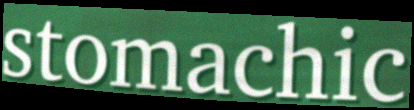
stomachic